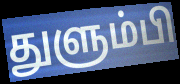
துளும்பி